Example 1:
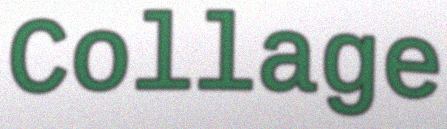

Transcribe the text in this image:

Collage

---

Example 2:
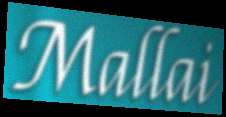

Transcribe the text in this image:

Mallai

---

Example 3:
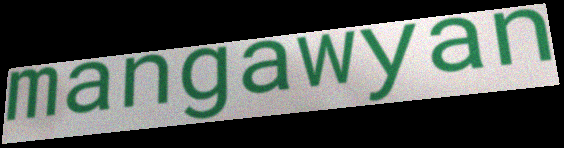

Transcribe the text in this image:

mangawyan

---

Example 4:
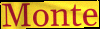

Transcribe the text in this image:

Monte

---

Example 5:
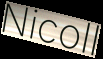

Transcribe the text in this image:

Nicoll